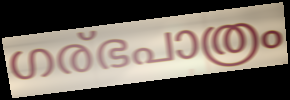
ഗര്ഭപാത്രം